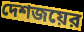
দেশজয়ের